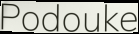
Podouke